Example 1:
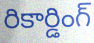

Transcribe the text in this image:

రికార్డింగ్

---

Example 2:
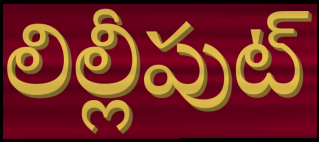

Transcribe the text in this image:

లిల్లీపుట్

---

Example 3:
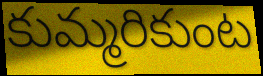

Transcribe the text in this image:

కుమ్మరికుంట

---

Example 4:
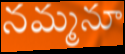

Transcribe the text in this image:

నమ్మనూ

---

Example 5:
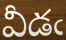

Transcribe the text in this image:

వీడఁ